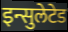
इन्सुलेटेड